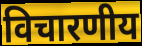
विचारणीय